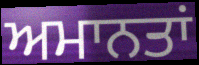
ਅਮਾਨਤਾਂ